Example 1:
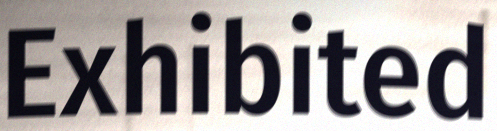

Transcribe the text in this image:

Exhibited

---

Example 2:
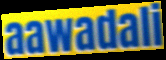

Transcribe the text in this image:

aawadali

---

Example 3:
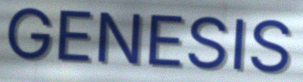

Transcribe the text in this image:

GENESIS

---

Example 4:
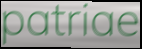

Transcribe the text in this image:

patriae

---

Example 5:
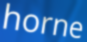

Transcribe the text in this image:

horne